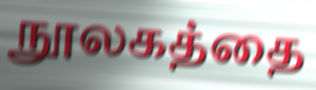
நூலகத்தை